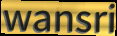
wansri